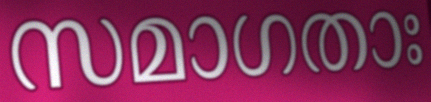
സമാഗതാഃ